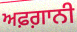
ਅਫ਼ਗ਼ਾਨੀ